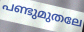
പണ്ടുമുതലേ